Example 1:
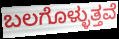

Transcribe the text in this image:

ಬಲಗೊಳ್ಳುತ್ತವೆ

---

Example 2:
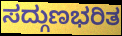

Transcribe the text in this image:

ಸದ್ಗುಣಭರಿತ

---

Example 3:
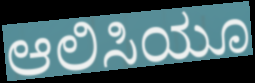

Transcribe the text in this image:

ಆಲಿಸಿಯೂ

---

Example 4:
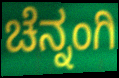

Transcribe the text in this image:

ಚೆನ್ನಂಗಿ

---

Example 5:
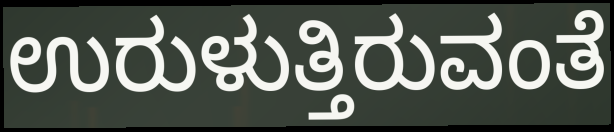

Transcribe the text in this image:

ಉರುಳುತ್ತಿರುವಂತೆ